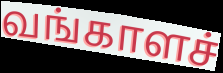
வங்காளச்